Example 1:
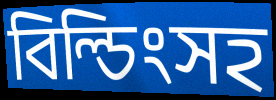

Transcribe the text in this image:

বিল্ডিংসহ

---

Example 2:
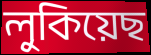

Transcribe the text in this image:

লুকিয়েছ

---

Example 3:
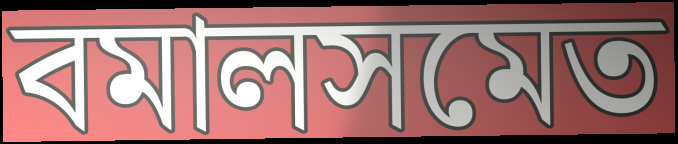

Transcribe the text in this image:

বমালসমেত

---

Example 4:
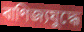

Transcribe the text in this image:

বাণিজ্যযুদ্ধে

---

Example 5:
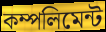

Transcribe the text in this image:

কম্পলিমেন্ট